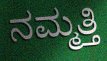
ನಮ್ಮತ್ತಿ